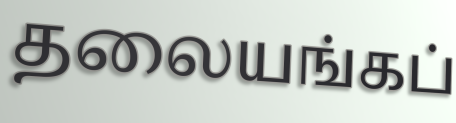
தலையங்கப்